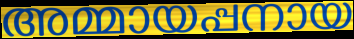
അമ്മായപ്പനായ